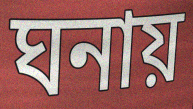
ঘনায়